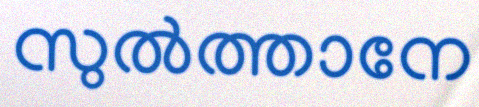
സുൽത്താനേ